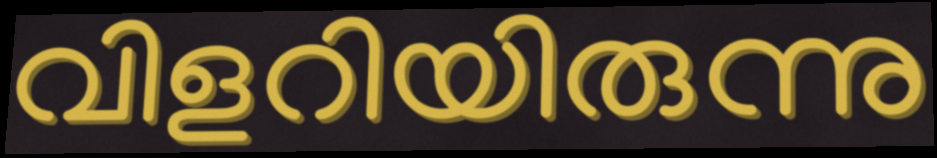
വിളറിയിരുന്നു